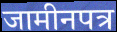
जामीनपत्र